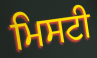
ਮਿਸਟੀ